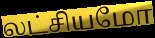
லட்சியமோ